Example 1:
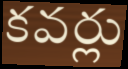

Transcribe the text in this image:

కవర్లు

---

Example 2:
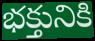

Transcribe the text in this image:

భక్తునికి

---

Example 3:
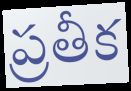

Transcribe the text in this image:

ప్రతీక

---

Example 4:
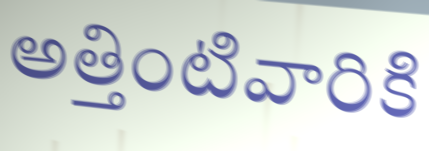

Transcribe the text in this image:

అత్తింటివారికి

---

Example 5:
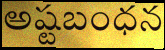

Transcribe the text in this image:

అష్టబంధన